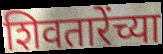
शिवतारेंच्या